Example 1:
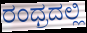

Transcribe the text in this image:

ರಂಧ್ರದಲ್ಲಿ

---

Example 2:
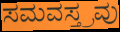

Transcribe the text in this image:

ಸಮವಸ್ತ್ರವು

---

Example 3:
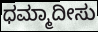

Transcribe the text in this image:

ಧಮ್ಮಾದೀಸು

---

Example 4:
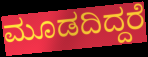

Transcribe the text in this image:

ಮೂಡದಿದ್ದರೆ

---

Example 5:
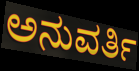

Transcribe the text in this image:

ಅನುವರ್ತಿ